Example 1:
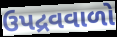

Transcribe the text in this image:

ઉપદ્રવવાળો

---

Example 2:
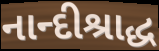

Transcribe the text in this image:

નાન્દીશ્રાદ્ધ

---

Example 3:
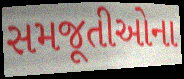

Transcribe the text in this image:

સમજૂતીઓના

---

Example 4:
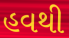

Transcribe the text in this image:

હવથી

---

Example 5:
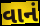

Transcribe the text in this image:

વાનં